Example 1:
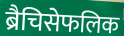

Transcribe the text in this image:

ब्रैचिसेफलिक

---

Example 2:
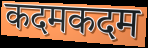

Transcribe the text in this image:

कदमकदम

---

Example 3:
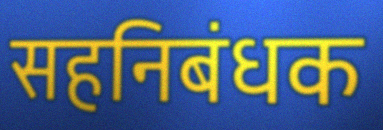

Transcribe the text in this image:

सहनिबंधक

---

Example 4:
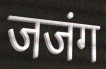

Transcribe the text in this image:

जजंग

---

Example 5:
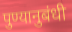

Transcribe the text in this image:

पुण्यानुबंधी